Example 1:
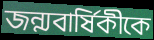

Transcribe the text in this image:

জন্মবার্ষিকীকে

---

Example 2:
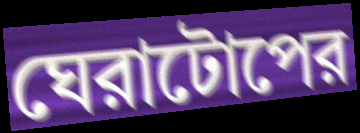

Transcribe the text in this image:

ঘেরাটোপের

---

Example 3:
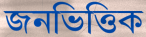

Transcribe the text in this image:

জনভিত্তিক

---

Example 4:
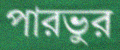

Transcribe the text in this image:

পারভুর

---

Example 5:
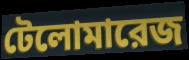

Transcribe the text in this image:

টেলোমারেজ